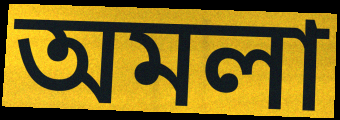
অমলা